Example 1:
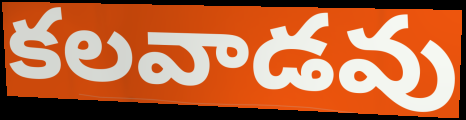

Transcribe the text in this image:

కలవాడవు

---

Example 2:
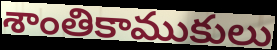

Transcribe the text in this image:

శాంతికాముకులు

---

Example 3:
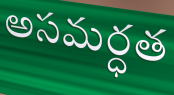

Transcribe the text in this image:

అసమర్ధత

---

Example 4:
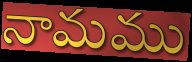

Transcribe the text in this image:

నామము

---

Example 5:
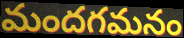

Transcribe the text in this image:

మందగమనం